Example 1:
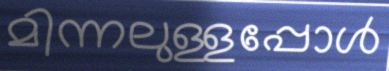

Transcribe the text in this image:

മിന്നലുള്ളപ്പോൾ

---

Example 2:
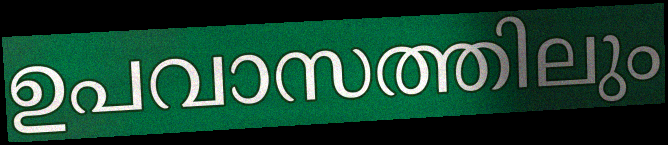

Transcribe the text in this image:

ഉപവാസത്തിലും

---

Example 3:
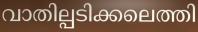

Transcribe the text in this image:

വാതില്പടിക്കലെത്തി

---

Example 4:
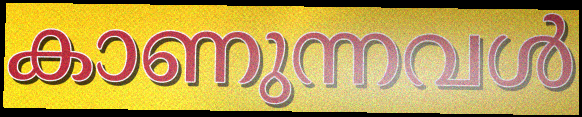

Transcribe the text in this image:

കാണുന്നവൾ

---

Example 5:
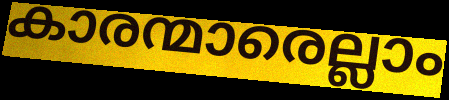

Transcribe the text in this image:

കാരന്മാരെല്ലാം